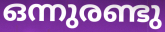
ഒന്നുരണ്ടു